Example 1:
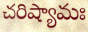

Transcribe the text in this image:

చరిష్యామః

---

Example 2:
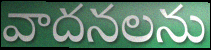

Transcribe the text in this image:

వాదనలను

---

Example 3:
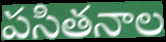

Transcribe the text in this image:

పసితనాల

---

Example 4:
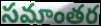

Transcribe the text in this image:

సమాంతర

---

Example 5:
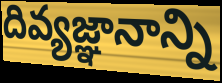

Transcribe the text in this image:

దివ్యజ్ఞానాన్ని